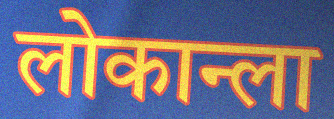
लोकान्ला